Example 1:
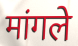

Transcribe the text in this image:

मांगले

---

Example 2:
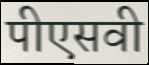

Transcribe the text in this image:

पीएसवी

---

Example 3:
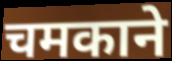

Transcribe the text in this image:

चमकाने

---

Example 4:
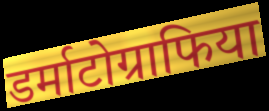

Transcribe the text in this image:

डर्माटोग्राफिया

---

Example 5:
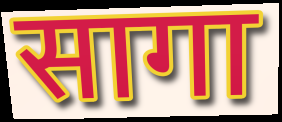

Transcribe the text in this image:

सागा